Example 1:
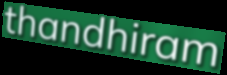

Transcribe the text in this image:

thandhiram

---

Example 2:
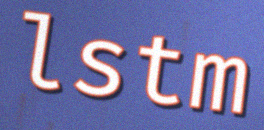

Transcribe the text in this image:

lstm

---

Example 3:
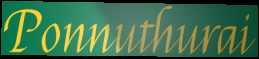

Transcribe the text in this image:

Ponnuthurai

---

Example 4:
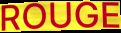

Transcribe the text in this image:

ROUGE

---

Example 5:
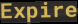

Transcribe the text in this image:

Expire